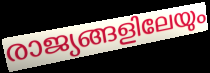
രാജ്യങ്ങളിലേയും